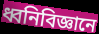
ধ্বনিবিজ্ঞানে